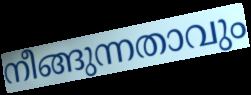
നീങ്ങുന്നതാവും